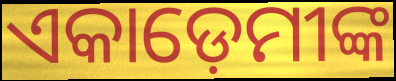
ଏକାଡ଼େମୀଙ୍କ